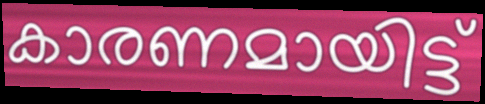
കാരണമായിട്ട്